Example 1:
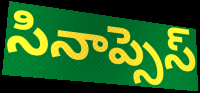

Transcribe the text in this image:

సినాప్సెస్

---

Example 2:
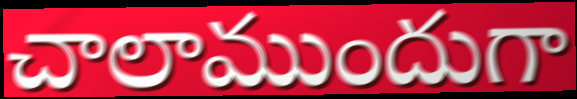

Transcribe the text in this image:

చాలాముందుగా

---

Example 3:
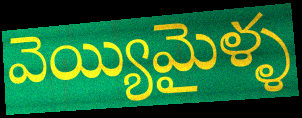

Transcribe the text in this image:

వెయ్యిమైళ్ళ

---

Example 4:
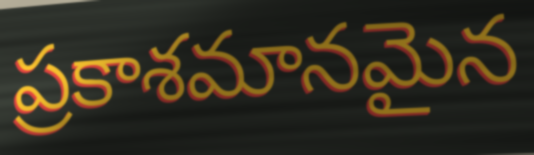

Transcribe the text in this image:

ప్రకాశమానమైన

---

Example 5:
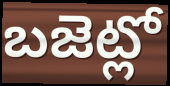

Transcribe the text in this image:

బజెట్లో